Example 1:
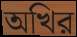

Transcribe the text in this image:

অখির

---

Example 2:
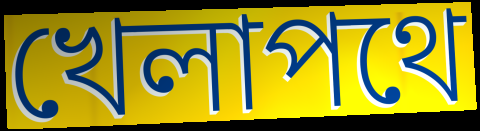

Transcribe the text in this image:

খেলাপথে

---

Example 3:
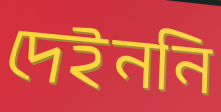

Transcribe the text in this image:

দেইননি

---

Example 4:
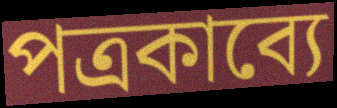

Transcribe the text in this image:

পত্রকাব্যে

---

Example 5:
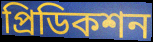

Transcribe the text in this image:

প্রিডিকশন